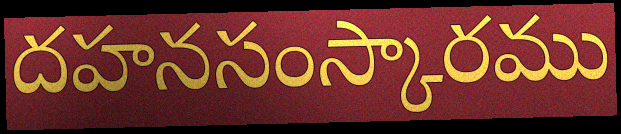
దహనసంస్కారము